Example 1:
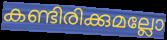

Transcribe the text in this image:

കണ്ടിരിക്കുമല്ലോ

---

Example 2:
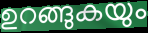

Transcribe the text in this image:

ഉറങ്ങുകയും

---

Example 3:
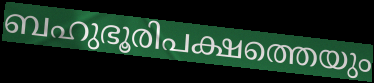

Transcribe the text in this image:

ബഹുഭൂരിപക്ഷത്തെയും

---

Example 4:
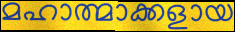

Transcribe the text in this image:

മഹാത്മാക്കളായ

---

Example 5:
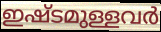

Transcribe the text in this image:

ഇഷ്ടമുള്ളവർ